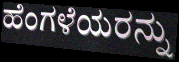
ಹೆಂಗಳೆಯರನ್ನು